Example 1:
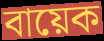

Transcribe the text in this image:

বায়েক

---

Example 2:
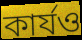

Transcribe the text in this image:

কাৰ্যও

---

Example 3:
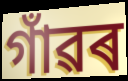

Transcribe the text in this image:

গাঁৱৰ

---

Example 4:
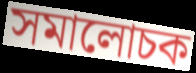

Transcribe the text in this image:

সমালোচক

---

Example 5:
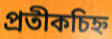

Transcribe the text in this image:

প্ৰতীকচিহ্ন